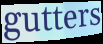
gutters